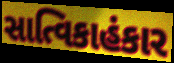
સાત્વિકાહંકાર